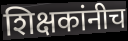
शिक्षकांनीच